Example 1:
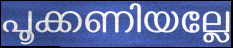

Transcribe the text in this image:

പൂക്കണിയല്ലേ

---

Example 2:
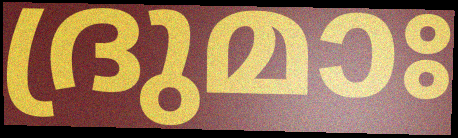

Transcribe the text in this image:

ദ്രുമാഃ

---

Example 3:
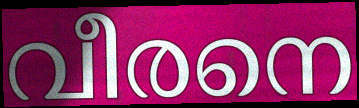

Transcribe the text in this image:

വീരനെ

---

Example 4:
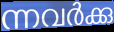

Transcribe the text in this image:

ന്നവർക്കു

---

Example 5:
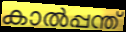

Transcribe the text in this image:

കാൽപ്പന്ത്